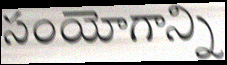
సంయోగాన్ని